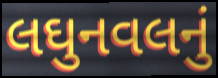
લઘુનવલનું